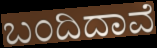
ಬಂದಿದಾವೆ